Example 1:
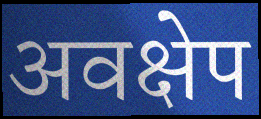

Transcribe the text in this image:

अवक्षेप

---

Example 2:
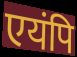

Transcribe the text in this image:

एयंपि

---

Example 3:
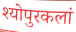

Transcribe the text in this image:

श्योपुरकलां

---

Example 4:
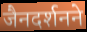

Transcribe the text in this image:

जैनदर्शनने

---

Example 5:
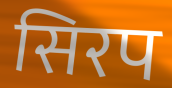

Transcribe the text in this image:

सिरप